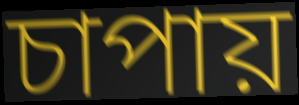
চাপায়